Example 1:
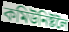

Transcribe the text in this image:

কমিউনিষ্টলৈ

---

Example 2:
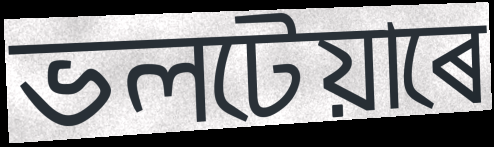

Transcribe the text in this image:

ভলটেয়াৰে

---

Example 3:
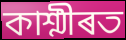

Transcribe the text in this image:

কাশ্মীৰত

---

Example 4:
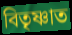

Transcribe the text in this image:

বিতৃষ্ণাত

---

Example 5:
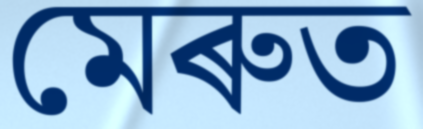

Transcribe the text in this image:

মেৰুত